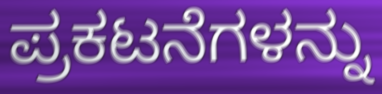
ಪ್ರಕಟನೆಗಳನ್ನು